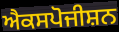
ਐਕਸਪੋਜੀਸ਼ਨ